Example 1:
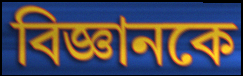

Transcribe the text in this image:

বিজ্ঞানকে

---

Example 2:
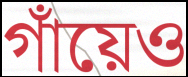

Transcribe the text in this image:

গাঁয়েও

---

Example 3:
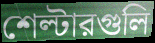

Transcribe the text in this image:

শেল্টারগুলি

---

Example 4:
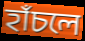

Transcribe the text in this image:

হাঁচলে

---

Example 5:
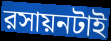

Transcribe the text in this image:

রসায়নটাই